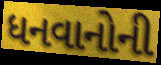
ધનવાનોની